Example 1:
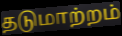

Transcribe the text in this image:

தடுமாற்றம்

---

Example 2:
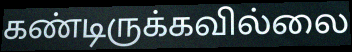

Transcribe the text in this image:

கண்டிருக்கவில்லை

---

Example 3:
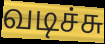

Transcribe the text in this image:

வடிச்சு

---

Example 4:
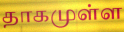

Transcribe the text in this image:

தாகமுள்ள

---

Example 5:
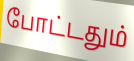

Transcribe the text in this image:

போட்டதும்